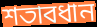
শতাবধান